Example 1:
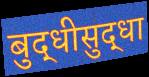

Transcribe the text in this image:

बुद्धीसुद्धा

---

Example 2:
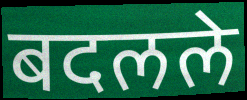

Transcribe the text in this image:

बदलले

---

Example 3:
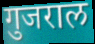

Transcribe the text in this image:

गुजराल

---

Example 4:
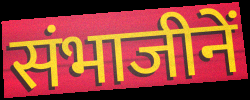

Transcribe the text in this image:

संभाजीनें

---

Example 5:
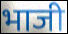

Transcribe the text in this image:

भाजी